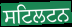
ਸਟਿਲਟਨ